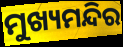
ମୁଖ୍ୟମନ୍ଦିର